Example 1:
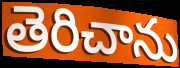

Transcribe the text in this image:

తెరిచాను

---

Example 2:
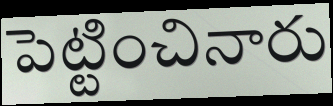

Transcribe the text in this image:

పెట్టించినారు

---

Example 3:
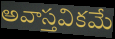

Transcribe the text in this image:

అవాస్తవికమే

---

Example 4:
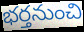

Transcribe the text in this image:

భర్తనుంచి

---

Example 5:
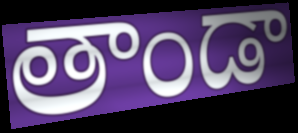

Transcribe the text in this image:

తాండా